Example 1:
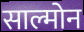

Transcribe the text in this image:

साल्मोन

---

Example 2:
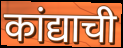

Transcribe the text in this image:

कांद्याची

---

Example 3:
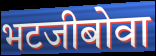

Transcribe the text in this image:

भटजीबोवा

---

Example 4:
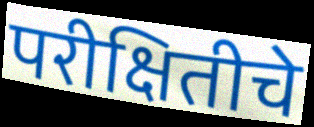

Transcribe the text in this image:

परीक्षितीचे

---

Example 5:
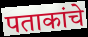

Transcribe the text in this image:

पताकांचे